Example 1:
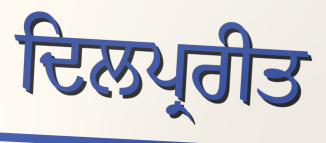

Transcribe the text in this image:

ਦਿਲਪ੍ਰਰੀਤ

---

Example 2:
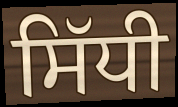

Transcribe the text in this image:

ਸਿੱਧੀ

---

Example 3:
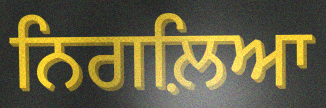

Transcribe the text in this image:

ਨਿਗਲ਼ਿਆ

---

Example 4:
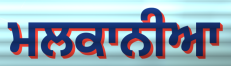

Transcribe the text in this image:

ਮਲਕਾਨੀਆ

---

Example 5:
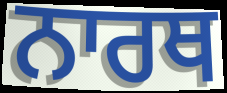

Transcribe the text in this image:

ਨਾਰਥ